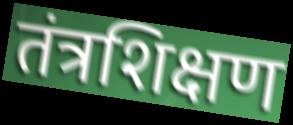
तंत्रशिक्षण